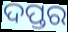
ଦପ୍ତର